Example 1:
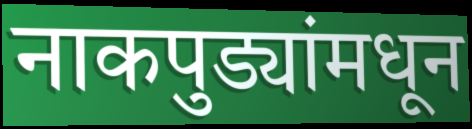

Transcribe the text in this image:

नाकपुड्यांमधून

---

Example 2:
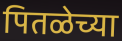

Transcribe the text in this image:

पितळेच्या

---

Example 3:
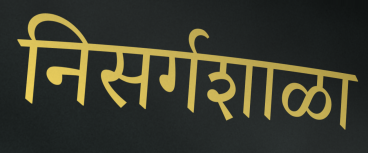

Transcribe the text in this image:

निसर्गशाळा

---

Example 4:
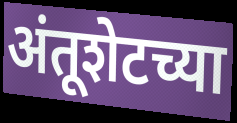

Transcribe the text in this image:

अंतूशेटच्या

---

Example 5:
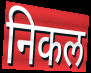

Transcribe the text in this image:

निकल